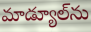
మాడ్యూల్‌ను